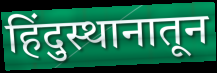
हिंदुस्थानातून